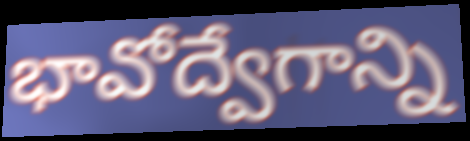
భావోద్వేగాన్ని